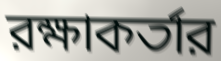
রক্ষাকর্তার